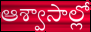
ఆశ్వాసాల్లో